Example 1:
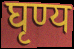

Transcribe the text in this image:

घृण्य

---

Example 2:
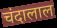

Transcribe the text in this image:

चंदालाल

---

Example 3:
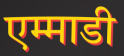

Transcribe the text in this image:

एम्माडी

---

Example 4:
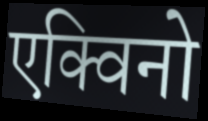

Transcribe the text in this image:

एक्विनो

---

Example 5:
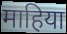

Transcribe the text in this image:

माहिया